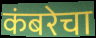
कंबरेचा